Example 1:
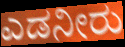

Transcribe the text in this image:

ಎಡನೀರು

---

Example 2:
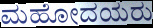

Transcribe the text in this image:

ಮಹೋದಯರು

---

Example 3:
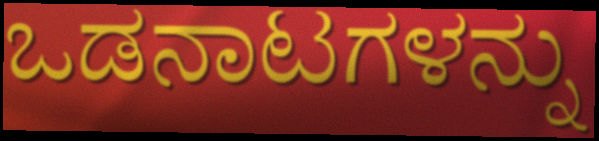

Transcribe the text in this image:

ಒಡನಾಟಗಳನ್ನು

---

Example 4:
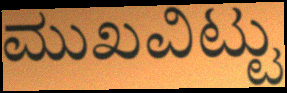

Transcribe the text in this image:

ಮುಖವಿಟ್ಟು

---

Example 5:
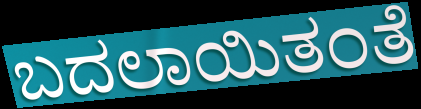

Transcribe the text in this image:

ಬದಲಾಯಿತಂತೆ